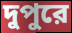
দুপুরে